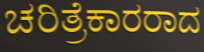
ಚರಿತ್ರೆಕಾರರಾದ